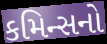
કમિન્સનો